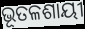
ଭୂତଳଶାୟୀ